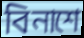
বিনাশে